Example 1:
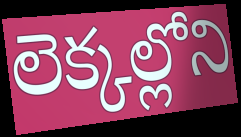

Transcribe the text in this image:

లెక్కల్లోని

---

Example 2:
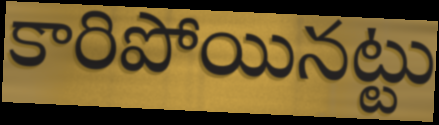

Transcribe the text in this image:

కారిపోయినట్టు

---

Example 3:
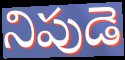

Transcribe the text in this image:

నిపుడె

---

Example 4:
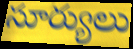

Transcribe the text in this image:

సూర్యులు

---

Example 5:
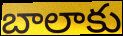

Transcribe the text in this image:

బాలాకు